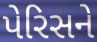
પેરિસને